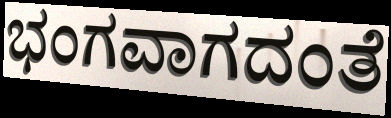
ಭಂಗವಾಗದಂತೆ